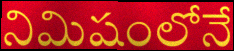
నిమిషంలోనే